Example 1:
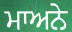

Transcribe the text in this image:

ਮਾਅਨੇ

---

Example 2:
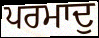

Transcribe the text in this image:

ਪਰਮਾਦੁ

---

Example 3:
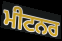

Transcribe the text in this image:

ਮੀਟਨਰ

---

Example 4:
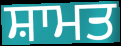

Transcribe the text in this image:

ਸ਼ਾਮਤ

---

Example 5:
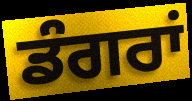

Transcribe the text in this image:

ਡੰਗਰਾਂ